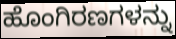
ಹೊಂಗಿರಣಗಳನ್ನು